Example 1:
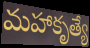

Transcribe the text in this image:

మహాకృత్యే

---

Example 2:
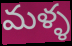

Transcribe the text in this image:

మళ్ళ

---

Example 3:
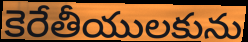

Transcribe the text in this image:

కెరేతీయులకును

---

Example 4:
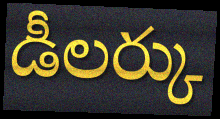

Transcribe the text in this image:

డీలర్కు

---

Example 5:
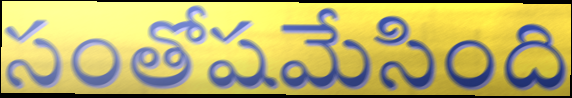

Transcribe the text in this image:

సంతోషమేసింది